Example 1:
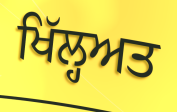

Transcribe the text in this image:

ਖਿੱਲ੍ਹਅਤ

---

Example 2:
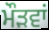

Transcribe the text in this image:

ਮੌੜਵਾਂ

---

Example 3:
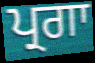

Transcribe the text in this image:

ਪ੍ਰਗਾ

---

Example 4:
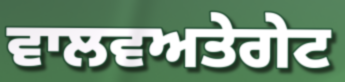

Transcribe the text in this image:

ਵਾਲਵਅਤੇਗੇਟ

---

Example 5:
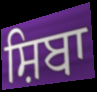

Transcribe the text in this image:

ਸ਼ਿਬਾ